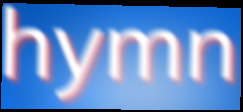
hymn